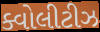
ક્વોલીટીઝ